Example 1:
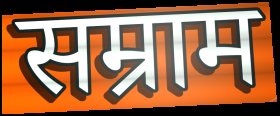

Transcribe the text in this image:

सम्राम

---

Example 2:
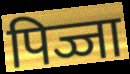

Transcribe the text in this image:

पिज्जा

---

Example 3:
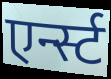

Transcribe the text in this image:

एर्न्स्ट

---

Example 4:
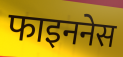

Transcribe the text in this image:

फाइननेस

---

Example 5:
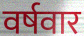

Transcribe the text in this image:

वर्षवार